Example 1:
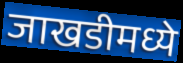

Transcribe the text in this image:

जाखडीमध्ये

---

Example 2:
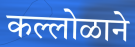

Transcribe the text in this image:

कल्लोळाने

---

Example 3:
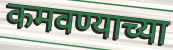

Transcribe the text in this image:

कमवण्याच्या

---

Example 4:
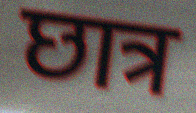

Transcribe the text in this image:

छात्र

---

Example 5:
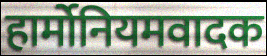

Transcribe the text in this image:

हार्मोनियमवादक